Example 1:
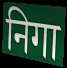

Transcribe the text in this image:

निगा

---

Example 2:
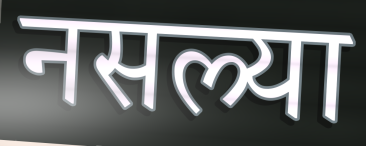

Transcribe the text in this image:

नसल्या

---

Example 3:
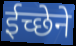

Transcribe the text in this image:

ईच्छेने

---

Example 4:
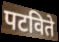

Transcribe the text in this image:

पटविते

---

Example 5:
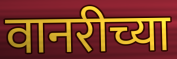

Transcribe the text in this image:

वानरीच्या